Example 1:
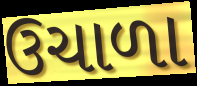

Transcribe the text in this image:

ઉચાળા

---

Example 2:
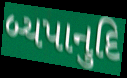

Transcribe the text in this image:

બ્યપાનુદિ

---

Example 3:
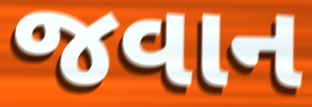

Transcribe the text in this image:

જવાન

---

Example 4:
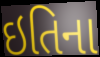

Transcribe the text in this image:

ઇતિના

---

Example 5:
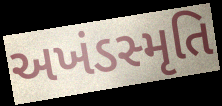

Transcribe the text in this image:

અખંડસ્મૃતિ